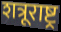
शत्रूराष्ट्र